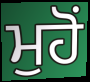
ਮੁਹੋਂ